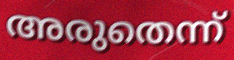
അരുതെന്ന്